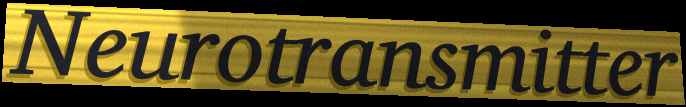
Neurotransmitter